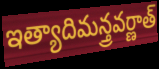
ఇత్యాదిమన్త్రవర్ణాత్